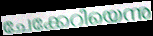
ചേക്കേറിയെന്നു